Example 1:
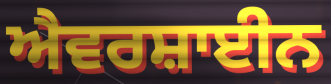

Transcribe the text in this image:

ਐਵਰਸ਼ਾਈਨ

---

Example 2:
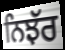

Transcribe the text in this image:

ਨਿਝੱਰ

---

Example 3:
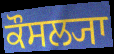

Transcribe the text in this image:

ਕੌਸਲ੍ਯਾ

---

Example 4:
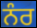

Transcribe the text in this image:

ਨੰਰ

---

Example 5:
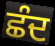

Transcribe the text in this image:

ਛੰਦ